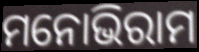
ମନୋଭିରାମ